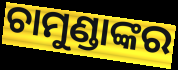
ଚାମୁଣ୍ଡାଙ୍କର